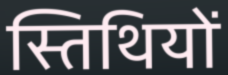
स्तिथियों